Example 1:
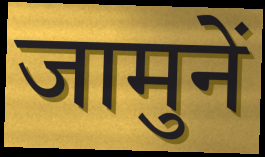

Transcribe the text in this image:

जामुनें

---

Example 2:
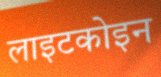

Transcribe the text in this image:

लाइटकोइन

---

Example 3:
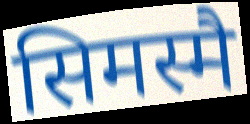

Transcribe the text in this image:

सिमस्मै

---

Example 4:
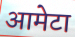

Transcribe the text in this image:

आमेटा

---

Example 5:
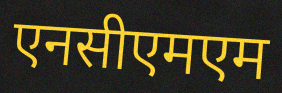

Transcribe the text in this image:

एनसीएमएम